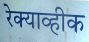
रेक्याव्हीक